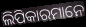
ଲିପିକାରମାନେ